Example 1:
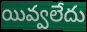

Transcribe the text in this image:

యివ్వలేదు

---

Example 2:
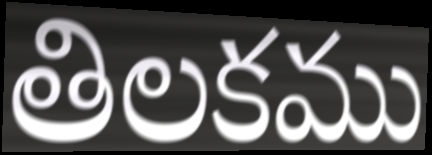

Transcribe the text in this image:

తిలకము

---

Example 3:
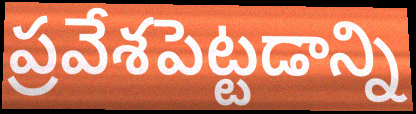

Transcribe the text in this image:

ప్రవేశపెట్టడాన్ని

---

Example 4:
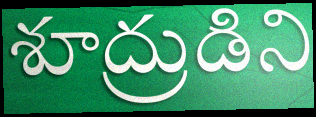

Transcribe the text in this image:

శూద్రుడిని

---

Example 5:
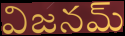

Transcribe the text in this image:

విజనమ్